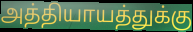
அத்தியாயத்துக்கு